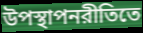
উপস্থাপনরীতিতে